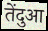
तेंदुआ